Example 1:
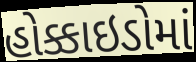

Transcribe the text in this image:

હોક્કાઇડોમાં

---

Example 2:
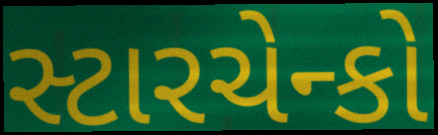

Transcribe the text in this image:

સ્ટારચેન્કો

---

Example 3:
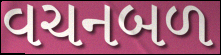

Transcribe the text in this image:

વચનબળ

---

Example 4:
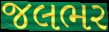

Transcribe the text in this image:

જલભર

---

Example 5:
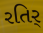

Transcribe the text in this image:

રતિર્